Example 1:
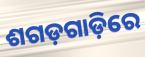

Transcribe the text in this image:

ଶଗଡ଼ଗାଡ଼ିରେ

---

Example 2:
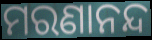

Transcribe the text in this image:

ମରଣାନନ୍ଦ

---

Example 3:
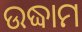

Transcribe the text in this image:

ଉଦ୍ଧାମ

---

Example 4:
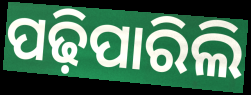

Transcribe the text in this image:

ପଢ଼ିପାରିଲି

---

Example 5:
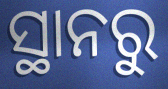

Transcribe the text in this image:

ସ୍ଥାନରୁ